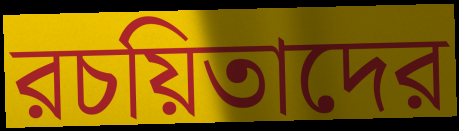
রচয়িতাদের